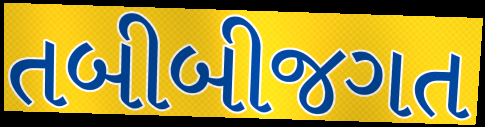
તબીબીજગત